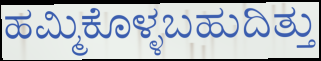
ಹಮ್ಮಿಕೊಳ್ಳಬಹುದಿತ್ತು